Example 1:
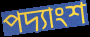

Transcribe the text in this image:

পদ্যাংশ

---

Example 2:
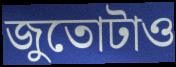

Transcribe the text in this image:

জুতোটাও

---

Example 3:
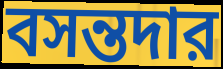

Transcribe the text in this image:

বসন্তদার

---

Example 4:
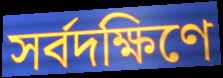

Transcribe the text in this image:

সর্বদক্ষিণে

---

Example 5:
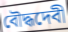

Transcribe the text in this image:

বৌদ্ধদেবী